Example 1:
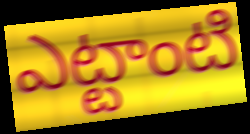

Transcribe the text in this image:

ఎట్టాంటి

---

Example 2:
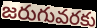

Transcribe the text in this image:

జరుగువరకు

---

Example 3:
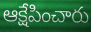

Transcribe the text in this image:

ఆక్షేపించారు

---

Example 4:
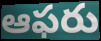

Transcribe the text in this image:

ఆఫరు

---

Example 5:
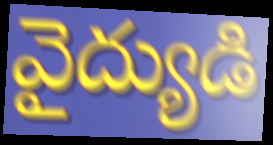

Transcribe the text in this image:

వైద్యుడి